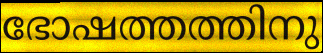
ഭോഷത്തത്തിനു